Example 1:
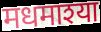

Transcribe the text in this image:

मधमाश्‍या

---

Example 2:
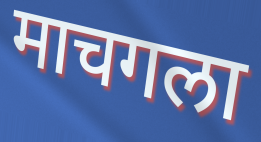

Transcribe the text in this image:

माचगला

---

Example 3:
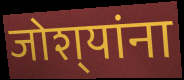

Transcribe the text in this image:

जोश्यांना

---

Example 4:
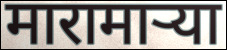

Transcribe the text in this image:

मारामार्‍या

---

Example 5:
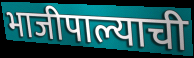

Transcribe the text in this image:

भाजीपाल्याची